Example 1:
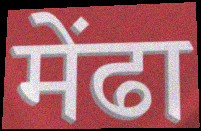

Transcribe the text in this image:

मेंढा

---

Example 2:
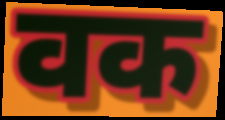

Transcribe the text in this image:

वक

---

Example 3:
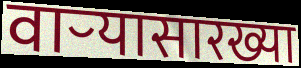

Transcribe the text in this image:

वाऱ्यासारख्या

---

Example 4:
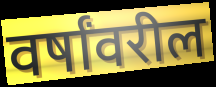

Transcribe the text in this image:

वर्षांवरील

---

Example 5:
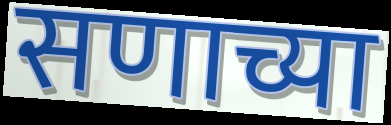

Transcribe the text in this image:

सणाच्या